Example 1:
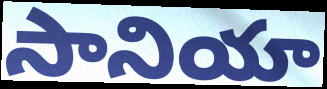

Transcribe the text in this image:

సానియా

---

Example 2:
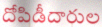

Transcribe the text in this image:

దోపిడీదారుల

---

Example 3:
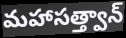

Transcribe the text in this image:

మహాసత్త్వాన్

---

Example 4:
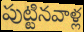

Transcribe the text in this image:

పుట్టినవాళ్ల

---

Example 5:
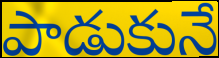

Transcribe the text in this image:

పాడుకునే